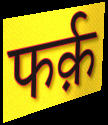
फर्क़